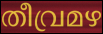
തീവ്രമഴ